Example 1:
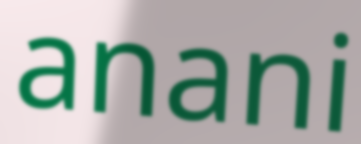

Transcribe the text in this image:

anani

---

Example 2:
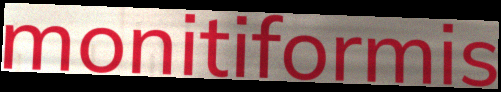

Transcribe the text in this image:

monitiformis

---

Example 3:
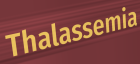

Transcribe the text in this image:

Thalassemia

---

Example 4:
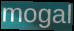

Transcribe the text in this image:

mogal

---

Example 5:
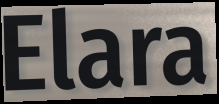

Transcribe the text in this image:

Elara